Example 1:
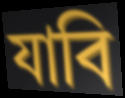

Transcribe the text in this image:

যাবি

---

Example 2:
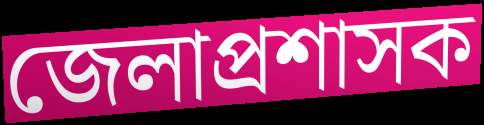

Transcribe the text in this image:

জেলাপ্রশাসক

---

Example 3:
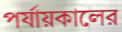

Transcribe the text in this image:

পর্যায়কালের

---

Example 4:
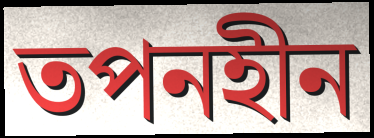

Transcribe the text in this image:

তপনহীন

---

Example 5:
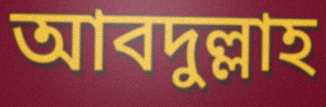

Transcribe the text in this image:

আবদুল্লাহ